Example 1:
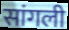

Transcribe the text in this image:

सांगली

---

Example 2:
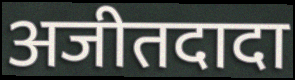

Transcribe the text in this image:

अजीतदादा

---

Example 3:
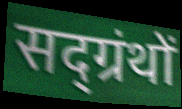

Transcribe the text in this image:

सद्ग्रंथों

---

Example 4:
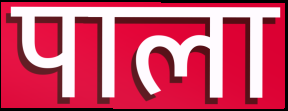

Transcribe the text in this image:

पाला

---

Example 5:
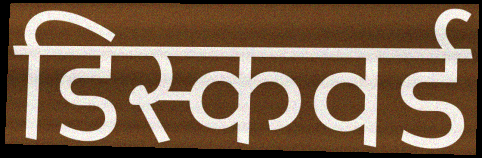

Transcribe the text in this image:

डिस्कवर्ड